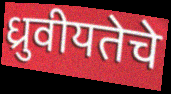
ध्रुवीयतेचे